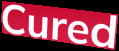
Cured